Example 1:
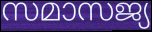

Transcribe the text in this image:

സമാസജ്യ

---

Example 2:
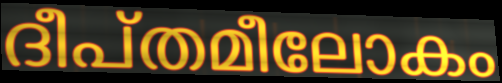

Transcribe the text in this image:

ദീപ്‌തമീലോകം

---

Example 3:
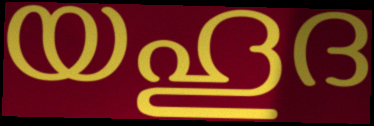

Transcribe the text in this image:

യഹൂദ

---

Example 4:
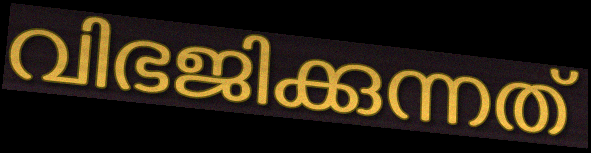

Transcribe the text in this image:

വിഭജിക്കുന്നത്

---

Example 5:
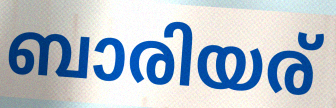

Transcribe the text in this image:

ബാരിയര്